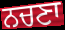
ਨਚਣਾ